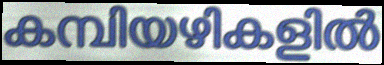
കമ്പിയഴികളിൽ